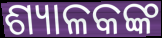
ଶ୍ୟାଳକଙ୍କ